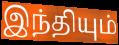
இந்தியும்